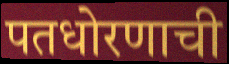
पतधोरणाची